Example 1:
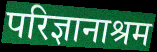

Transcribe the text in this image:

परिज्ञानाश्रम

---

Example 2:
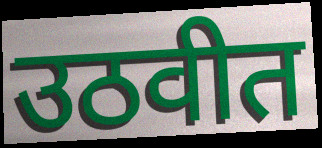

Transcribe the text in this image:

उठवीत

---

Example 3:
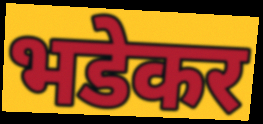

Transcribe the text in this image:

भडेकर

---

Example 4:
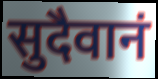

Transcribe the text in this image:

सुदैवानं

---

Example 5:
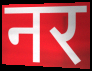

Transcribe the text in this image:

नर